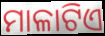
ମାଳାଟିଏ